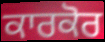
ਕਾਰਕੋਰ